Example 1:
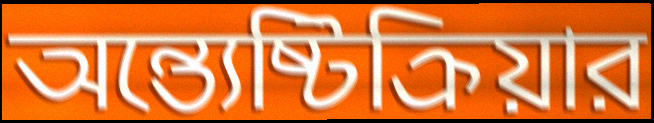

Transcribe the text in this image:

অন্ত্যেষ্টিক্রিয়ার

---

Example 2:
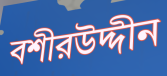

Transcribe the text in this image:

বশীরউদ্দীন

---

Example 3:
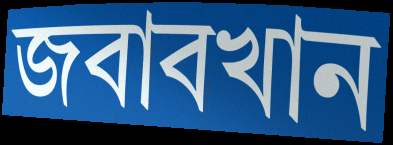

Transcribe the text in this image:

জবাবখান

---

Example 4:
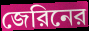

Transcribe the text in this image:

জেরিনের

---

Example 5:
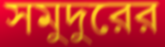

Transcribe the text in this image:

সমুদুরের